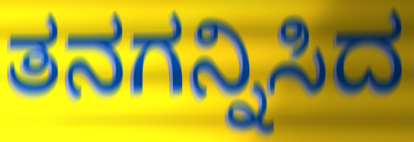
ತನಗನ್ನಿಸಿದ